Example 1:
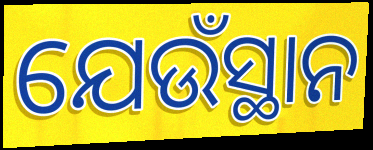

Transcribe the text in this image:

ଯେଉଁସ୍ଥାନ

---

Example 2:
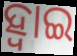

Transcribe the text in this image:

ହ୍ଵାଇ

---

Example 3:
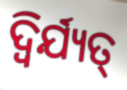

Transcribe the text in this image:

ଦ୍ୱିର୍ଯ୍ୟତ୍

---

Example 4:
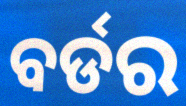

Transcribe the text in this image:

ବର୍ଡର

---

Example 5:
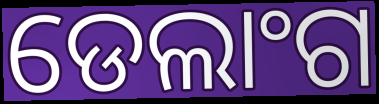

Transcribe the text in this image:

ଡେଲାଂଗ